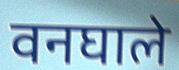
वनघाले